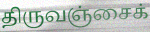
திருவஞ்சைக்